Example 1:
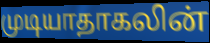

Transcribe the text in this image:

முடியாதாகலின்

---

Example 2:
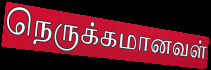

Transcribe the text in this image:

நெருக்கமானவள்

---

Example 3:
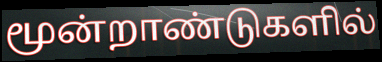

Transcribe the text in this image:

மூன்றாண்டுகளில்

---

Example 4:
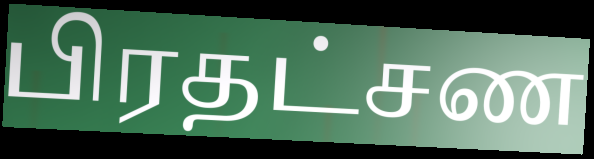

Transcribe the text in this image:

பிரதட்சண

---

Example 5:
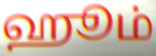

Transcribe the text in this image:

ஹூம்